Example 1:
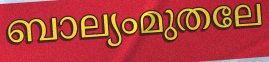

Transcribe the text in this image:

ബാല്യംമുതലേ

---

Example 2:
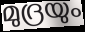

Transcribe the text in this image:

മുദ്രയും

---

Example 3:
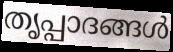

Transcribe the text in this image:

തൃപ്പാദങ്ങൾ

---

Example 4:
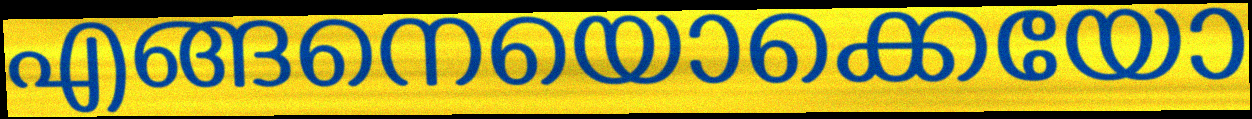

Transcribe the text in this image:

എങ്ങനെയൊക്കെയോ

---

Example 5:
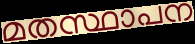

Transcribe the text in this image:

മതസ്ഥാപന